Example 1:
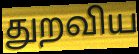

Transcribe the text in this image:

துறவிய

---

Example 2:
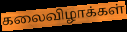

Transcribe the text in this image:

கலைவிழாக்கள்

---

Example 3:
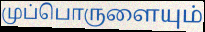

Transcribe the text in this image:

முப்பொருளையும்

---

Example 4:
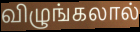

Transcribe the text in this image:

விழுங்கலால்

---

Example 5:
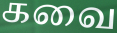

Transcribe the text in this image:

கவை